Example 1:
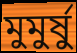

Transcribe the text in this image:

মুমুর্ষু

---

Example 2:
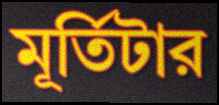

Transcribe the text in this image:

মূর্তিটার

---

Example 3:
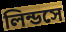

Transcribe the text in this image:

লিন্ডসে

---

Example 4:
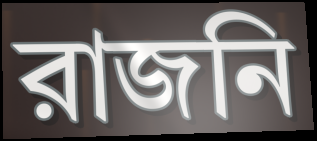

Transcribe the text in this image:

রাজনি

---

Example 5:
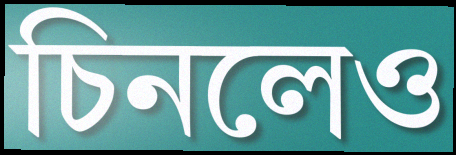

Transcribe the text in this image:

চিনলেও